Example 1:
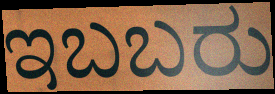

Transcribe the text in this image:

ಇಬಬರು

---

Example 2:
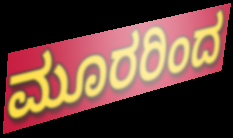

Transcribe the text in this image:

ಮೂರರಿಂದ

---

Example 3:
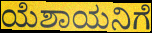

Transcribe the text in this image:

ಯೆಶಾಯನಿಗೆ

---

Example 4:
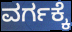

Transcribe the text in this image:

ವರ್ಗಕ್ಕೆ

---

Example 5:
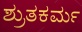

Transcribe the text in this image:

ಶ್ರುತಕರ್ಮ